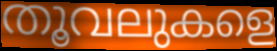
തൂവലുകളെ